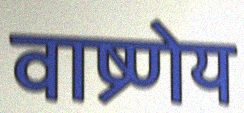
वाष्र्णेय